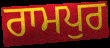
ਰਾਮਪੁਰ